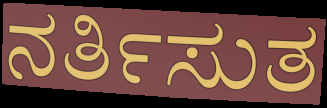
ನರ್ತಿಸುತ